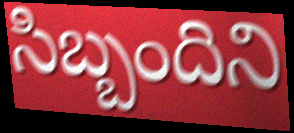
సిబ్బందిని